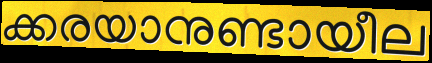
ക്കരയാനുണ്ടായീല